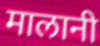
मालानी